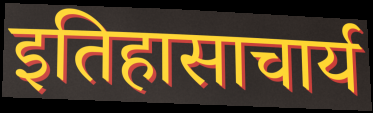
इतिहासाचार्य